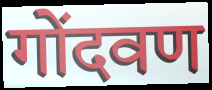
गोंदवण